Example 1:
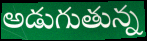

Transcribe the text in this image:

అడుగుతున్న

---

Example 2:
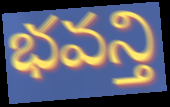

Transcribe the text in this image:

భవన్తి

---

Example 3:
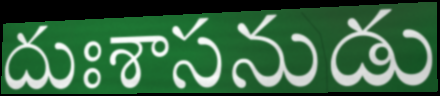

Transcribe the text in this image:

దుఃశాసనుడు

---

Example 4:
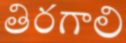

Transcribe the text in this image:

తిరగాలి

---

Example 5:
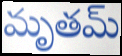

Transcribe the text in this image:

మృతమ్